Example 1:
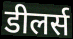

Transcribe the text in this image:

डीलर्स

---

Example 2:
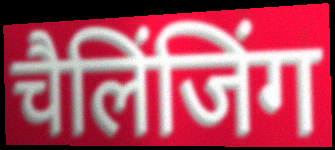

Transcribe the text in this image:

चैलिंजिंग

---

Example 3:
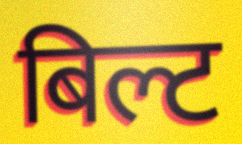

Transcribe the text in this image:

बिल्‍ट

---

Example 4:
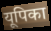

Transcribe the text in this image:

यूपिका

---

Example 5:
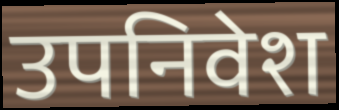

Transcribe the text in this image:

उपनिवेश